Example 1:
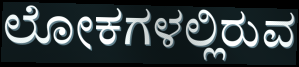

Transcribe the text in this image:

ಲೋಕಗಳಲ್ಲಿರುವ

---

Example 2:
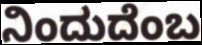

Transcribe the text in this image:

ನಿಂದುದೆಂಬ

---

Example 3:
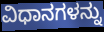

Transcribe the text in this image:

ವಿಧಾನಗಳನ್ನು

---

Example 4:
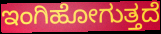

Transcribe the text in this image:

ಇಂಗಿಹೋಗುತ್ತದೆ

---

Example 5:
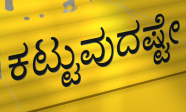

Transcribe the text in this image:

ಕಟ್ಟುವುದಷ್ಟೇ